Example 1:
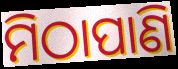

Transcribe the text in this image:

ମିଠାପାଣି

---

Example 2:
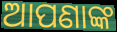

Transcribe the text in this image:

ଆପଣାଙ୍କ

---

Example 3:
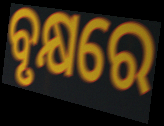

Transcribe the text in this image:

ବୃକ୍ଷରେ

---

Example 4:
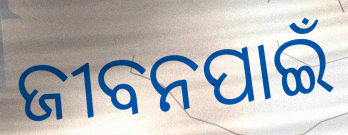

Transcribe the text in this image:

ଜୀବନପାଇଁ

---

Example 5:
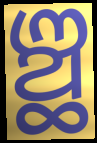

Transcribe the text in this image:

ଞ୍ଛ